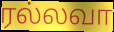
ரல்லவா